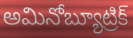
అమినోబ్యూట్రిక్